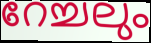
റേച്ചലും